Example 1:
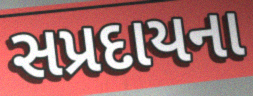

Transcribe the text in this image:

સપ્રદાયના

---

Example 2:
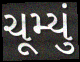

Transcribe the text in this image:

ચૂમ્યું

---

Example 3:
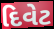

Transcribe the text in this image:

દિવેટ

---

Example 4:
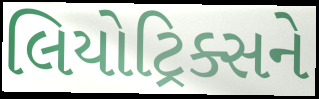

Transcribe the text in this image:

લિયોટ્રિક્સને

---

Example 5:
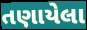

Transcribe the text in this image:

તણાયેલા